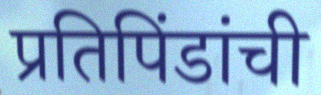
प्रतिपिंडांची